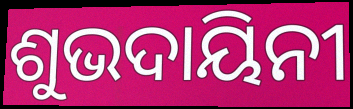
ଶୁଭଦାୟିନୀ